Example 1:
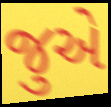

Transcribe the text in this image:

જુએ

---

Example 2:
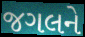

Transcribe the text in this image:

જગલને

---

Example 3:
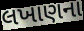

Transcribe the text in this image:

લખાણના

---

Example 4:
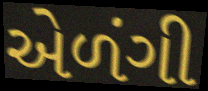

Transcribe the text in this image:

એળંગી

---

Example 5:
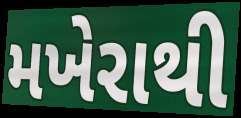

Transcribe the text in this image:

મખેરાથી